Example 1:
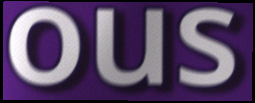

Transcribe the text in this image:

ous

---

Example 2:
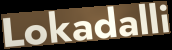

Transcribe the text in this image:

Lokadalli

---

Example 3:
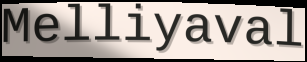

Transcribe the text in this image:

Melliyaval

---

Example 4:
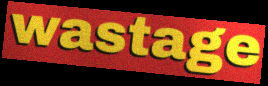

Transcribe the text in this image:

wastage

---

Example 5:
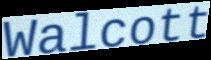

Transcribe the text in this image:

Walcott